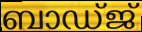
ബാഡ്ജ്